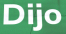
Dijo